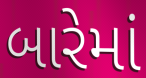
બારેમાં